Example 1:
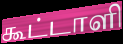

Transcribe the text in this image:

கூட்டாளி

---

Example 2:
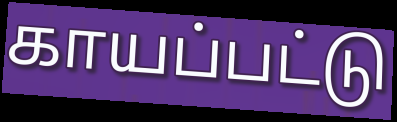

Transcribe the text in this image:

காயப்பட்டு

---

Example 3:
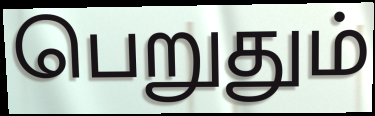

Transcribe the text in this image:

பெறுதும்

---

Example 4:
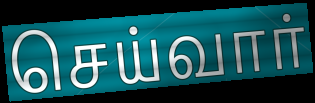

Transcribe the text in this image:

செய்வார்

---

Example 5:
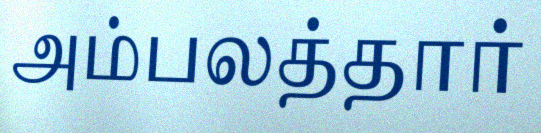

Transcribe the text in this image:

அம்பலத்தார்